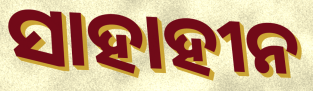
ସାହାହୀନ